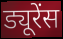
ड्यूरेंस